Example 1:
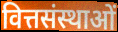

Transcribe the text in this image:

वित्तसंस्थाओं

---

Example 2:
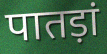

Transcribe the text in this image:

पातड़ां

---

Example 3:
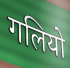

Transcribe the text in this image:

गलियो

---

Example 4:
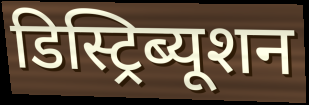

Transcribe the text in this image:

डिस्ट्रिब्यूशन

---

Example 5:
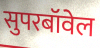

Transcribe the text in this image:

सुपरबॉवेल